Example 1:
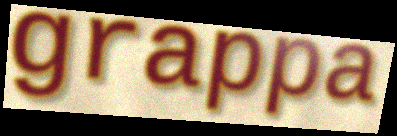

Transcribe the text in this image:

grappa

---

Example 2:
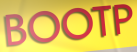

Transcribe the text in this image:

BOOTP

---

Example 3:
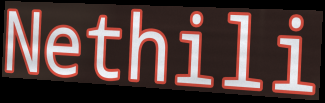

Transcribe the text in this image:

Nethili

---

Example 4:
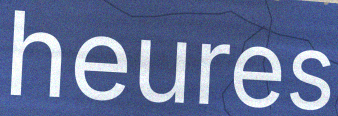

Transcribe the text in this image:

heures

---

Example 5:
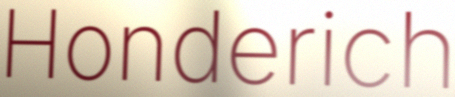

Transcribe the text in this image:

Honderich